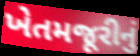
ખેતમજૂરીનું